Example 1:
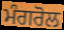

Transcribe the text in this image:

ਮੰਗਰੋਲ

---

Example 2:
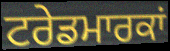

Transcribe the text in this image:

ਟਰੇਡਮਾਰਕਾਂ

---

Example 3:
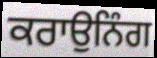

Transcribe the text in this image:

ਕਰਾਉਨਿੰਗ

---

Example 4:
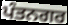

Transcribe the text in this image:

ਪੰਤਨਗਰ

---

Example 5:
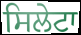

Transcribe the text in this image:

ਸਿਲੇਟਾ